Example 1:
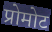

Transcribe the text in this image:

प्रोमोट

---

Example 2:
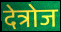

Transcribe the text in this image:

देत्रोज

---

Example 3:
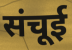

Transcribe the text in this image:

संचूई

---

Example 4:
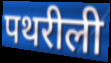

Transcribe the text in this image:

पथरीली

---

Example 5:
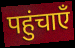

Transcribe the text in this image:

पहुंचाएँ